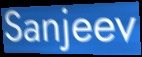
Sanjeev